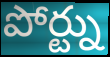
పోర్ట్ను